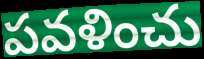
పవళించు